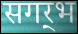
सगर्भ